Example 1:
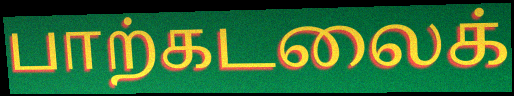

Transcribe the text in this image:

பாற்கடலைக்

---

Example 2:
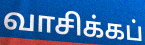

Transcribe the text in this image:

வாசிக்கப்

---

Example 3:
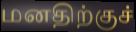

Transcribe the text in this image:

மனதிற்குச்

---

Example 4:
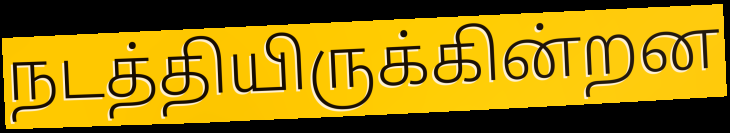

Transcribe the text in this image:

நடத்தியிருக்கின்றன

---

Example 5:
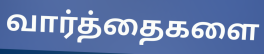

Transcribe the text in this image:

வார்த்தைகளை